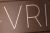
VRI